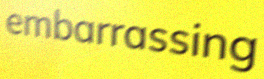
embarrassing